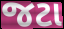
જટા